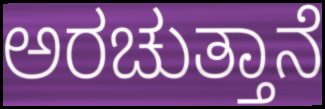
ಅರಚುತ್ತಾನೆ